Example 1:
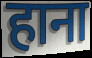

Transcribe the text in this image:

हाना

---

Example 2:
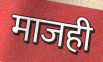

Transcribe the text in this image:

माजही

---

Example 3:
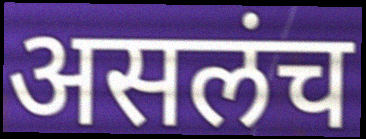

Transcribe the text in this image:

असलंच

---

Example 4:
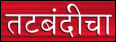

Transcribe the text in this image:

तटबंदीचा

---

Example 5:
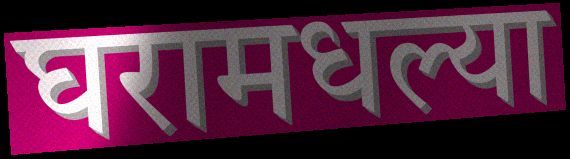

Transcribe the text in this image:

घरामधल्या